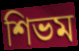
শিভম